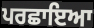
ਪਰਛਾਇਆ